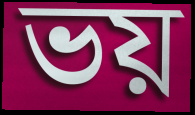
ভয়